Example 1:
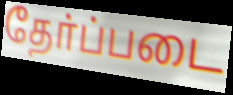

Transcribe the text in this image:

தேர்ப்படை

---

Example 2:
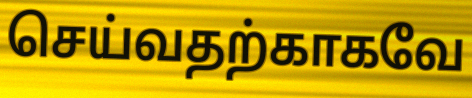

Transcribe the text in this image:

செய்வதற்காகவே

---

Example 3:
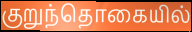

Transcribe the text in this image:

குறுந்தொகையில்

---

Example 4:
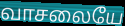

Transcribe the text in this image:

வாசலையே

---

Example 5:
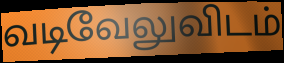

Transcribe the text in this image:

வடிவேலுவிடம்